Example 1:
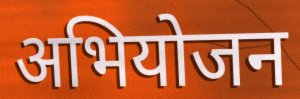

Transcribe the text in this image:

अभियोजन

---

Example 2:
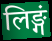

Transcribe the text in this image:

लिङ्गं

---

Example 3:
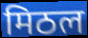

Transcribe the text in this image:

मिठल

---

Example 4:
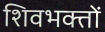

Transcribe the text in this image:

शिवभक्तों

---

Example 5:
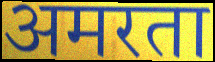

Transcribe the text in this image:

अमरता